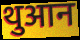
थुआन